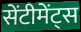
सेंटीमेंट्स